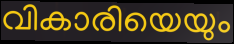
വികാരിയെയും